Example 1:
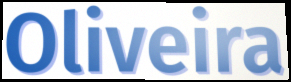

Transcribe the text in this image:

Oliveira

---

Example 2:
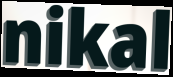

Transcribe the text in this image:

nikal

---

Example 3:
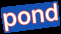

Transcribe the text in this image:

pond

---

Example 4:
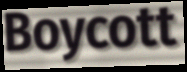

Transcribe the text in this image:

Boycott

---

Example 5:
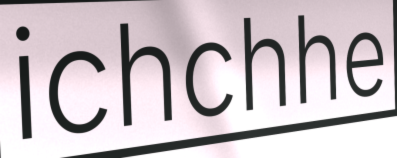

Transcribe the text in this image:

ichchhe